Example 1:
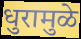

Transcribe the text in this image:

धुरामुळे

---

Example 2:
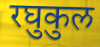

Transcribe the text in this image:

रघुकुल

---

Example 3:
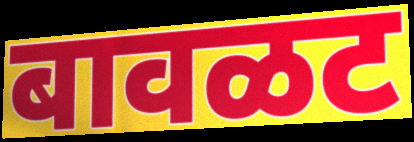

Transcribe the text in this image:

बावळट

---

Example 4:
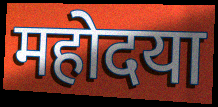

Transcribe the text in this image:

महोदया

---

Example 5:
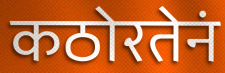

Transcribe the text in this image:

कठोरतेनं